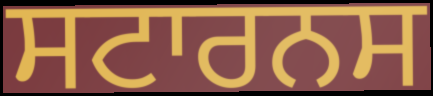
ਸਟਾਰਨਸ